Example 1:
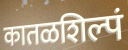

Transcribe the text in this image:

कातळशिल्पं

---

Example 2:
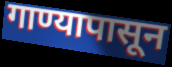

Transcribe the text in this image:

गाण्यापासून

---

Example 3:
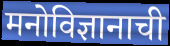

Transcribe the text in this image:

मनोविज्ञानाची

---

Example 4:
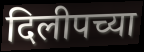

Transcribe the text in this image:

दिलीपच्या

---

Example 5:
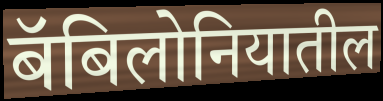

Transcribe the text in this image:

बॅबिलोनियातील